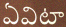
ఏవిటా